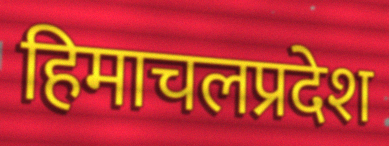
हिमाचलप्रदेश